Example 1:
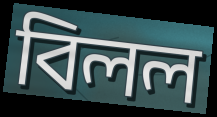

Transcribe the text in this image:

বিলল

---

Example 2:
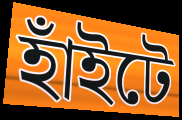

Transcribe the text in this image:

হাঁইটে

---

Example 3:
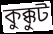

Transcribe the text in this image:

কুক্কুট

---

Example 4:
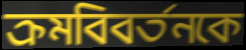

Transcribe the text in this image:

ক্রমবিবর্তনকে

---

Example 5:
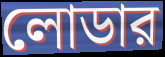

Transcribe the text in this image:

লোডার